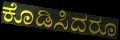
ಕೊಡಿಸಿದರೂ